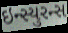
ઇન્સ્યુરન્સ